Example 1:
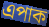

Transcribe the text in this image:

এপাক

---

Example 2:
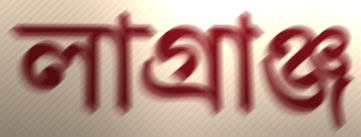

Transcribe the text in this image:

লাগ্ৰাঞ্জ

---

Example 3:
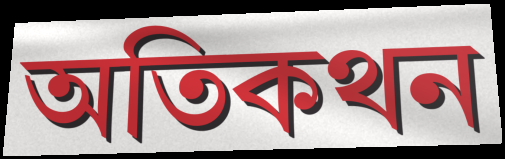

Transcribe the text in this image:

অতিকথন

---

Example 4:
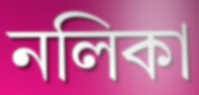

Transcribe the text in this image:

নলিকা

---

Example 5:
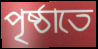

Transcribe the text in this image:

পৃষ্ঠাতে